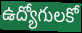
ఉద్యోగులకో